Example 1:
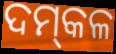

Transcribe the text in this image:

ଦମ୍‌କଳ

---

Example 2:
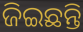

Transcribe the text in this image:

ଜିଇଛନ୍ତି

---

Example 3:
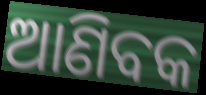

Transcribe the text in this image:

ଆଣିବକ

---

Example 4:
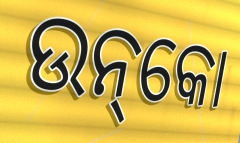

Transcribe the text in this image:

ଉନ୍‌କୋ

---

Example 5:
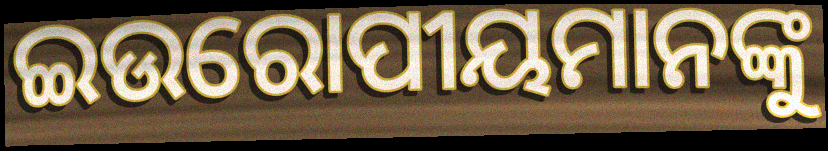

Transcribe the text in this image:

ଇଉରୋପୀୟମାନଙ୍କୁ